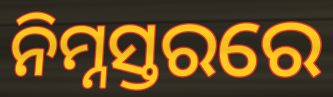
ନିମ୍ନସ୍ତରରେ